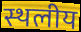
स्थलीय